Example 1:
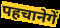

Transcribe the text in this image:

पहचानेगें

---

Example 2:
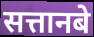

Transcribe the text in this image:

सत्तानबे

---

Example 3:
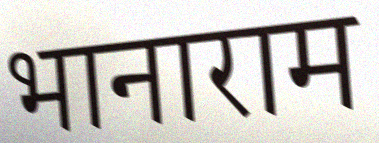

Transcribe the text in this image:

भानाराम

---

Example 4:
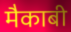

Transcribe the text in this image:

मैकाबी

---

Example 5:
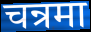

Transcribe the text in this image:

चन्रमा